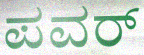
ಪವರ್